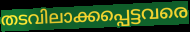
തടവിലാക്കപ്പെട്ടവരെ